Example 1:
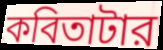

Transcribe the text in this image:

কবিতাটার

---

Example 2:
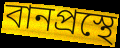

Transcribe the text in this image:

বানপ্রস্থে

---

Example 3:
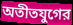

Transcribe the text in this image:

অতীতযুগের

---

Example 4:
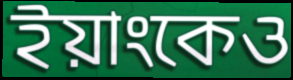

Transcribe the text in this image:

ইয়াংকেও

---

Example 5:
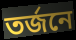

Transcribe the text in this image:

তর্জনে